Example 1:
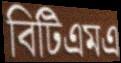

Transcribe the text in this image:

বিটিএমএ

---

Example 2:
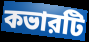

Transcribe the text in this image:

কভারটি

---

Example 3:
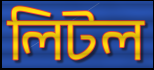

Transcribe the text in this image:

লিটল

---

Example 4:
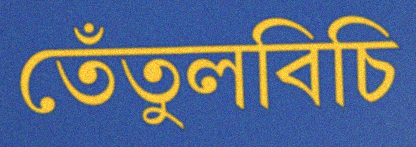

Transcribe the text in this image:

তেঁতুলবিচি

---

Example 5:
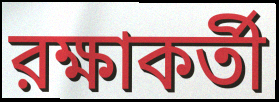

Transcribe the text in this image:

রক্ষাকর্তী